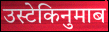
उस्टेकिनुमाब